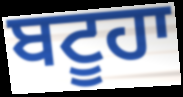
ਬਟੂਹਾ